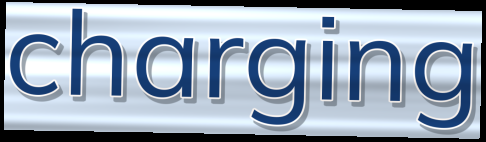
charging